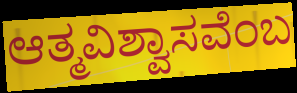
ಆತ್ಮವಿಶ್ವಾಸವೆಂಬ